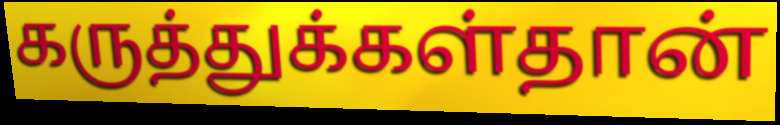
கருத்துக்கள்தான்